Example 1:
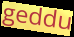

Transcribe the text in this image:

geddu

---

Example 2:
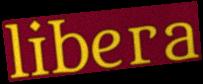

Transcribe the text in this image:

libera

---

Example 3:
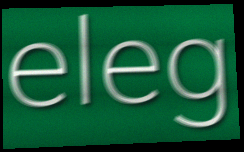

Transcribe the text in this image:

eleg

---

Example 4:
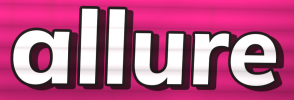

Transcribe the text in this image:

allure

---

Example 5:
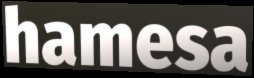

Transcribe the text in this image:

hamesa